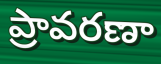
ప్రావరణా